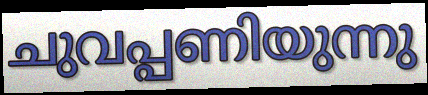
ചുവപ്പണിയുന്നു